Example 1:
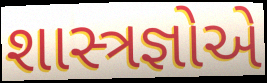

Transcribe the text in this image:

શાસ્ત્રજ્ઞોએ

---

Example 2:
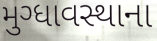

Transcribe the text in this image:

મુગ્ધાવસ્થાના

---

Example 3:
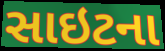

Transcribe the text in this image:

સાઇટના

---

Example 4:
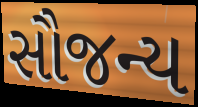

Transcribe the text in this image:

સૌજન્ય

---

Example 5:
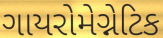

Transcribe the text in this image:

ગાયરોમેગ્નેટિક